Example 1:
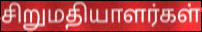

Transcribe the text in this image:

சிறுமதியாளர்கள்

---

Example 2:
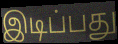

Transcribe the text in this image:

இடிப்பது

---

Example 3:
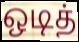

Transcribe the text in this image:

ஒடித்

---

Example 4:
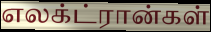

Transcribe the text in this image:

எலக்ட்ரான்கள்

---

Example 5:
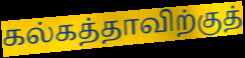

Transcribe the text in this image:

கல்கத்தாவிற்குத்